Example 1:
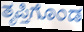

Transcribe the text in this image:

ತೃಪ್ತಿಗೊಂಡ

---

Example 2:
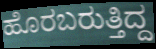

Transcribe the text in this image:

ಹೊರಬರುತ್ತಿದ್ದ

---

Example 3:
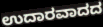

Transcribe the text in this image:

ಉದಾರವಾದದ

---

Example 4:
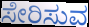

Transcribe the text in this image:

ಸೇರಿಸುವ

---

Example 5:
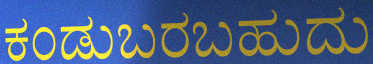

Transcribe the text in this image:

ಕಂಡುಬರಬಹುದು